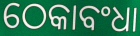
ଠେକାବଂଧା